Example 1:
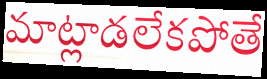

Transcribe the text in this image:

మాట్లాడలేకపోతే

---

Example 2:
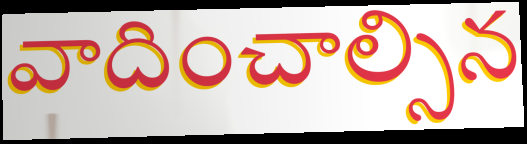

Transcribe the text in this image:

వాదించాల్సిన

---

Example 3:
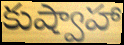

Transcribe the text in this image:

కుష్వాహా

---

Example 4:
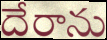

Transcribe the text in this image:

దేరాను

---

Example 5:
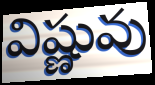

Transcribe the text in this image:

విష్ణువు